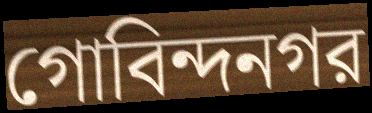
গোবিন্দনগর